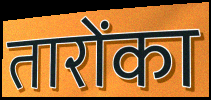
तारोंका